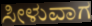
ಸೀಳುವಾಗ